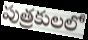
పుత్రకులలో